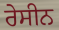
ਰੇਸੀਨ